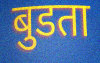
बुडता